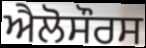
ਐਲੋਸੌਰਸ